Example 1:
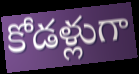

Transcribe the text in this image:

కోడళ్లుగా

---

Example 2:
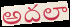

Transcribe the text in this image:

అదలా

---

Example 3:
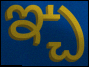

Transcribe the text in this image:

ఞ్చ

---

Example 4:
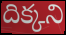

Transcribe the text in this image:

దిక్కని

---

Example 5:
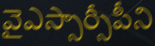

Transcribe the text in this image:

వైఎస్సార్సీపీని